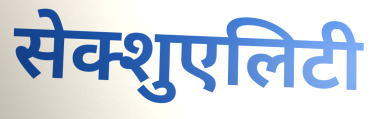
सेक्शुएलिटी